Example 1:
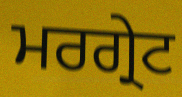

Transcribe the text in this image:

ਮਰਗ੍ਰੇਟ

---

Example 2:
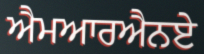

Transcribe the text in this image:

ਐਮਆਰਐਨਏ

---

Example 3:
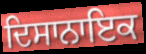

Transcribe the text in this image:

ਦਿਸਾਨਾਇਕ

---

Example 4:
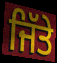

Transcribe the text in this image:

ਜਿੱਤੇ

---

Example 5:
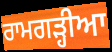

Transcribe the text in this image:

ਰਾਮਗੜ੍ਹੀਆ